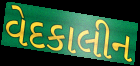
વેદકાલીન